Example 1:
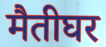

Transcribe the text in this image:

मैतीघर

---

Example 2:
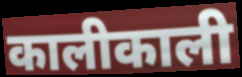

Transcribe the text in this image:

कालीकाली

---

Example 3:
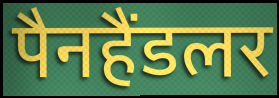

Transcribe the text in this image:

पैनहैंडलर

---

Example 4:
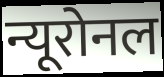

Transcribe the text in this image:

न्यूरोनल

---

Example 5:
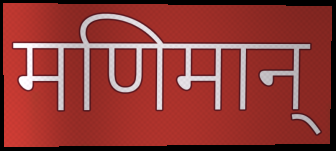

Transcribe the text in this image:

मणिमान्